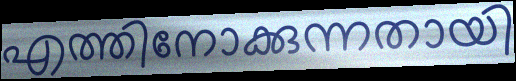
എത്തിനോക്കുന്നതായി